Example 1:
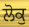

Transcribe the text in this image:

ਲੋਕੁ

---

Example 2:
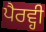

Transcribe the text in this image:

ਪੈਰਵ੍ਹੀ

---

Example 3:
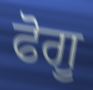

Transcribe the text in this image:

ਫੋਗੂ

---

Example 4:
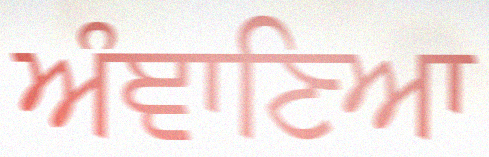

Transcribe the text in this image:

ਅੰਞਾਣਿਆ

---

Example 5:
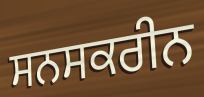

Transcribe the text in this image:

ਸਨਸਕਰੀਨ